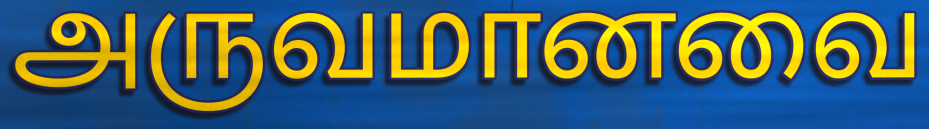
அருவமானவை